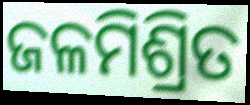
ଜଳମିଶ୍ରିତ